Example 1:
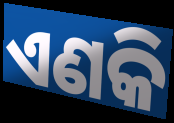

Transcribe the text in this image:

ଏଣକି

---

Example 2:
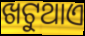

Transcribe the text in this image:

ଖଟୁଥାଏ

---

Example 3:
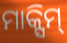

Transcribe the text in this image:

ମାକ୍ସିମ୍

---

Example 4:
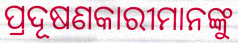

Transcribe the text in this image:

ପ୍ରଦୂଷଣକାରୀମାନଙ୍କୁ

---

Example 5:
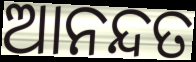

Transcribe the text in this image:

ଆନନ୍ଦତ